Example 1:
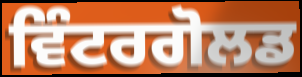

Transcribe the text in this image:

ਵਿੰਟਰਗੋਲਡ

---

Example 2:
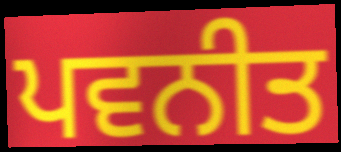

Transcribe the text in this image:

ਪਵਨੀਤ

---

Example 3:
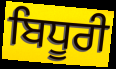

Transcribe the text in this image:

ਬਿਧੂਰੀ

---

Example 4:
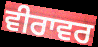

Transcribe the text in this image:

ਵੀਰਾਵਰ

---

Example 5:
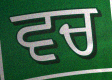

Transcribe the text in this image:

ਵਚ